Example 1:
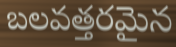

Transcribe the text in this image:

బలవత్తరమైన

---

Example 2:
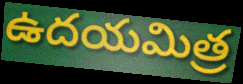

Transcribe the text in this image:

ఉదయమిత్ర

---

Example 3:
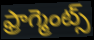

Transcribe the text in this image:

ఫ్రాగ్మెంట్స్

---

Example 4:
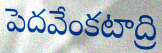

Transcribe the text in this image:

పెదవేంకటాద్రి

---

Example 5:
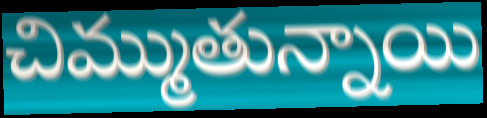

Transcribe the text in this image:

చిమ్ముతున్నాయి